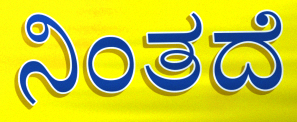
ನಿಂತದೆ